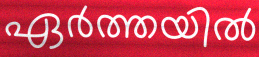
ഏർത്തയിൽ